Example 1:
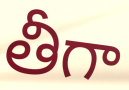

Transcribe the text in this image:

తీగా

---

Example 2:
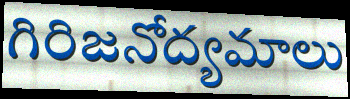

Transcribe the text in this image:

గిరిజనోద్యమాలు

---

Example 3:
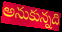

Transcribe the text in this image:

అనుకున్నది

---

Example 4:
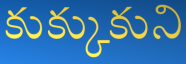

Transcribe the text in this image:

కుక్కుకుని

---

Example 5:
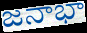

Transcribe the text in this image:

జనాభా